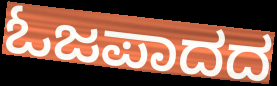
ಓಜಪಾದದ